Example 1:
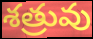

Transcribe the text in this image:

శత్రువు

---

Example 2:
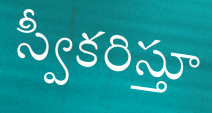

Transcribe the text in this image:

స్వీకరిస్తూ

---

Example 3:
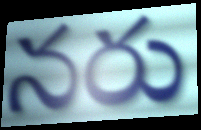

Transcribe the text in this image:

నరు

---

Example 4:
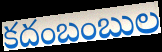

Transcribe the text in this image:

కదంబంబుల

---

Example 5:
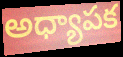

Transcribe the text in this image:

అధ్యాపక